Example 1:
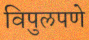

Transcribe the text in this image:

विपुलपणे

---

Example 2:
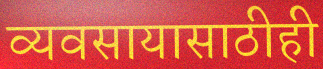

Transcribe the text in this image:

व्यवसायासाठीही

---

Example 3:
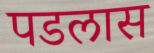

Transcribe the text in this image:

पडलास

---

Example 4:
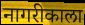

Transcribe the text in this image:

नागरीकाला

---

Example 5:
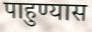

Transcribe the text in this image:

पाहुण्यास